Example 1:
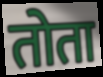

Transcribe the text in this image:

तोता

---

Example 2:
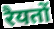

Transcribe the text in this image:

रैयतों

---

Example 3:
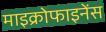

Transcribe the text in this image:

माइक्रोफाइनेंस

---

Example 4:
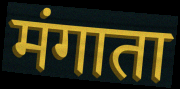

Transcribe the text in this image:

मंगाता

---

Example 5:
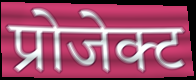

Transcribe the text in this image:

प्रोजेक्ट